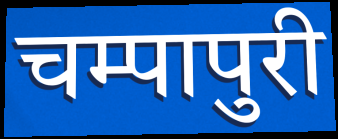
चम्पापुरी